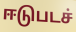
ஈடுபடச்